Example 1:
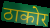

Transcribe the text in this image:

ठाकोर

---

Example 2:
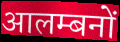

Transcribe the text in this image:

आलम्बनों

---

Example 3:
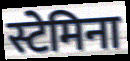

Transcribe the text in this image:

स्टेमिना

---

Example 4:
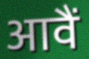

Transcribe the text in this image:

आवैं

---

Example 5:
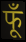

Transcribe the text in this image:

फूँ